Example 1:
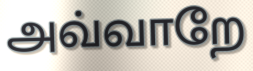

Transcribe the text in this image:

அவ்வாறே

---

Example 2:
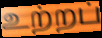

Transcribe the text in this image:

உற்றப்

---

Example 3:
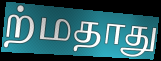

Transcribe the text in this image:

ற்மதாது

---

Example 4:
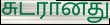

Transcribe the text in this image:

சுடரானது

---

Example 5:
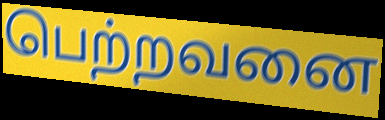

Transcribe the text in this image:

பெற்றவனை